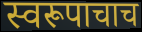
स्वरूपाचाच